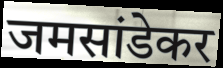
जमसांडेकर